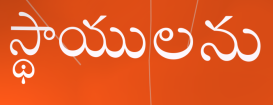
స్థాయులను